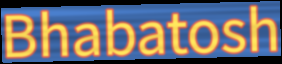
Bhabatosh